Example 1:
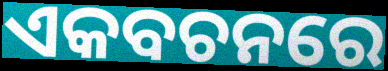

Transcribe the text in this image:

ଏକବଚନରେ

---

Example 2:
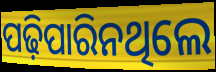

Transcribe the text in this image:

ପଢ଼ିପାରିନଥିଲେ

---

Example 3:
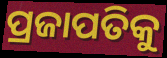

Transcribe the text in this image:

ପ୍ରଜାପତିକୁ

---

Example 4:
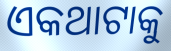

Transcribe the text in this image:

ଏକଥାଟାକୁ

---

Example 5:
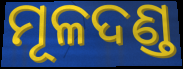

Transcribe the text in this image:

ମୂଳଦଣ୍ଡ